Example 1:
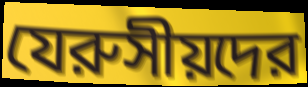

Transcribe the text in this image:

যেরুসীয়দের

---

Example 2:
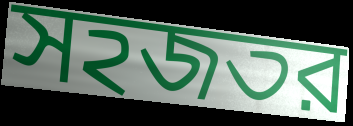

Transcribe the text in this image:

সহজতর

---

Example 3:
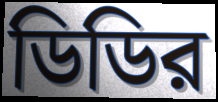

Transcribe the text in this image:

ডিডির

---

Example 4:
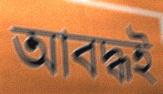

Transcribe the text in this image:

আবদ্ধই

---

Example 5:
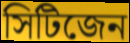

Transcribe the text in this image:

সিটিজেন